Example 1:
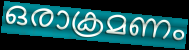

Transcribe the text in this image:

ഒരാക്രമണം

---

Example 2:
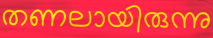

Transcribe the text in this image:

തണലായിരുന്നു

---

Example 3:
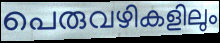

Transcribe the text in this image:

പെരുവഴികളിലും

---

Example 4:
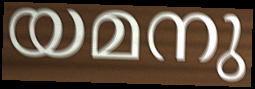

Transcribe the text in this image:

യമനു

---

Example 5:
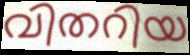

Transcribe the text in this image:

വിതറിയ